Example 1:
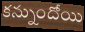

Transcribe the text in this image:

కన్నుందోయి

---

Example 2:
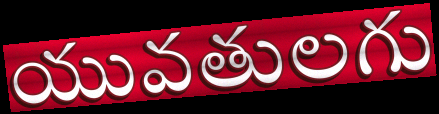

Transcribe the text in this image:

యువతులగు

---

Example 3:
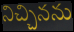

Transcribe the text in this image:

నిచ్చినను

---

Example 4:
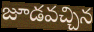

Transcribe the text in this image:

జూడవచ్చిన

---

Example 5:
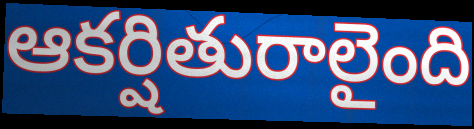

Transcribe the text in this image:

ఆకర్షితురాలైంది